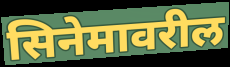
सिनेमावरील